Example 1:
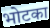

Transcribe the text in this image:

भोटका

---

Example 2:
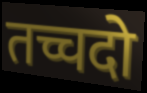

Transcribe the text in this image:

तच्चदो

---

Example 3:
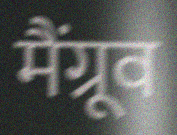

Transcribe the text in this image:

मैंग्रूव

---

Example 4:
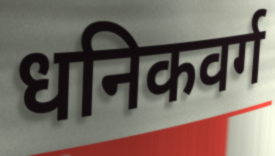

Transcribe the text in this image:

धनिकवर्ग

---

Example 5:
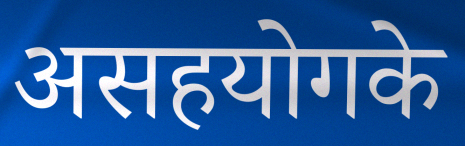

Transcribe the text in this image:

असहयोगके